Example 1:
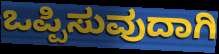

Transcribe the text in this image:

ಒಪ್ಪಿಸುವುದಾಗಿ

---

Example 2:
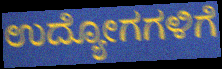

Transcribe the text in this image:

ಉದ್ಯೋಗಗಳಿಗೆ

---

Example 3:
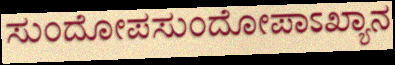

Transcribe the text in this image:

ಸುಂದೋಪಸುಂದೋಪಾಽಖ್ಯಾನ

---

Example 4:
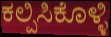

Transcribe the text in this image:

ಕಲ್ಪಿಸಿಕೊಳ್ಳಿ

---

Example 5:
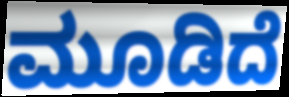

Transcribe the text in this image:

ಮೂಡಿದೆ